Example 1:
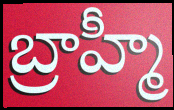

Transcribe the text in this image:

బ్రాహ్మీ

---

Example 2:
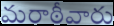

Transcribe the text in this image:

మరాఠీవారు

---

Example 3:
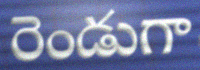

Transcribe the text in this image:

రెండుగా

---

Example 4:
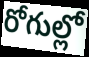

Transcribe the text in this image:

రోగుల్లో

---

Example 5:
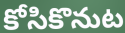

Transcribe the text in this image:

కోసికొనుట